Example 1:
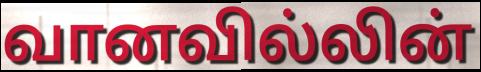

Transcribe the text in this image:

வானவில்லின்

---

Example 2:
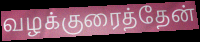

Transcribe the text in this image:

வழக்குரைத்தேன்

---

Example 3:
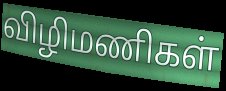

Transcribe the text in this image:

விழிமணிகள்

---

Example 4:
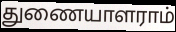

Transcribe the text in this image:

துணையாளராம்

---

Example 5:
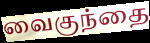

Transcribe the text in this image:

வைகுந்தை